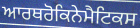
ਆਰਥਰੋਕਿਨੇਮੈਟਿਕਸ